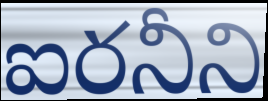
ఐరనీని